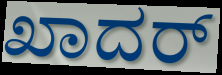
ಖಾದರ್